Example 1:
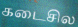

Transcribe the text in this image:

கடைசில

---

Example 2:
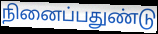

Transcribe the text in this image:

நினைப்பதுண்டு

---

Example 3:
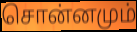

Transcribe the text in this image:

சொன்னமும்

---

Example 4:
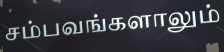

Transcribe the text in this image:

சம்பவங்களாலும்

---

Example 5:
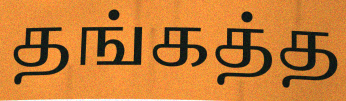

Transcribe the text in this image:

தங்கத்த